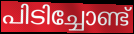
പിടിച്ചോണ്ട്